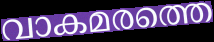
വാകമരത്തെ